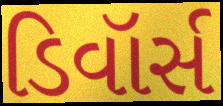
ડિવૉર્સ